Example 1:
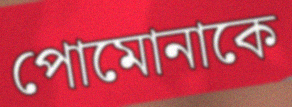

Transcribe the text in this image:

পোমোনাকে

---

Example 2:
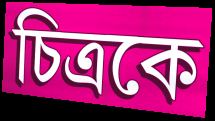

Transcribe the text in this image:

চিত্রকে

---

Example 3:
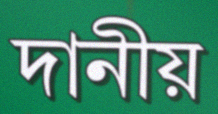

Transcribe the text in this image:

দানীয়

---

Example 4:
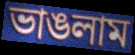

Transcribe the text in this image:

ভাঙলাম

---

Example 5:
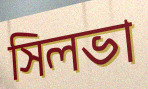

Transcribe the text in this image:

সিলভা